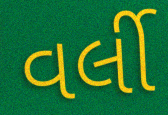
વર્લી